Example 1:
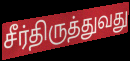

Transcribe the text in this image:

சீர்திருத்துவது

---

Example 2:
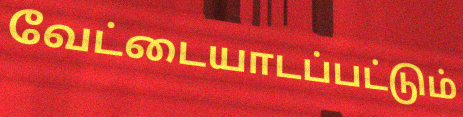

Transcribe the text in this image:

வேட்டையாடப்பட்டும்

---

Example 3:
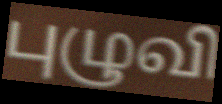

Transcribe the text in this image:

புழுவி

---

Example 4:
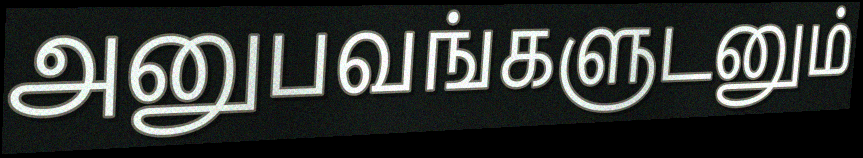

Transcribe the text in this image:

அனுபவங்களுடனும்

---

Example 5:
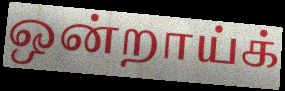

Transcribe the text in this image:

ஒன்றாய்க்